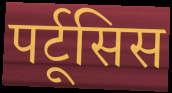
पर्टूसिस